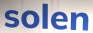
solen